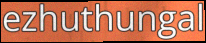
ezhuthungal